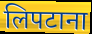
लिपटाना